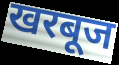
खरबूज